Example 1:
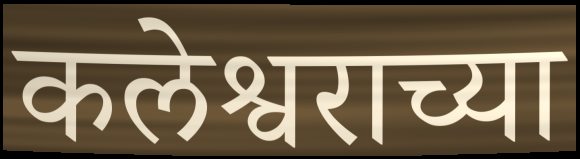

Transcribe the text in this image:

कलेश्वराच्या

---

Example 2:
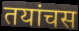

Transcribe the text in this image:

तयांचस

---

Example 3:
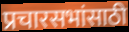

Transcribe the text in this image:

प्रचारसभांसाठी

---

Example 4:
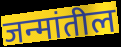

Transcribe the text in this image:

जन्मांतील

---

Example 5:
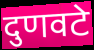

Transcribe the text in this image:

दुणवटे